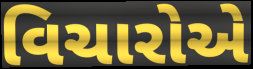
વિચારોએ